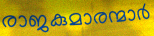
രാജകുമാരന്മാർ